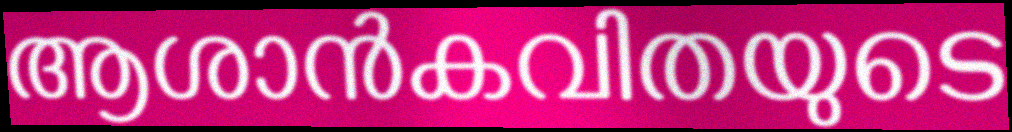
ആശാൻകവിതയുടെ